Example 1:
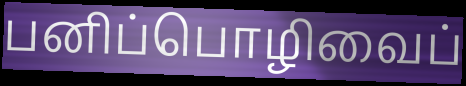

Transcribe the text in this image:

பனிப்பொழிவைப்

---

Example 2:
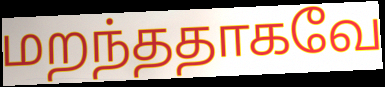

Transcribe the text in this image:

மறந்ததாகவே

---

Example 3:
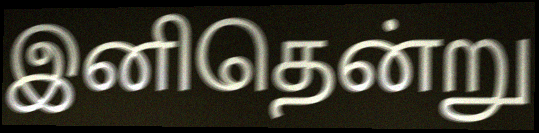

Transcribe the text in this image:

இனிதென்று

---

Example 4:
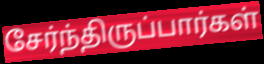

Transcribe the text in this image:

சேர்ந்திருப்பார்கள்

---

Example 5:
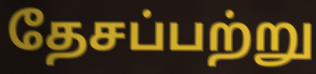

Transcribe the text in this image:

தேசப்பற்று